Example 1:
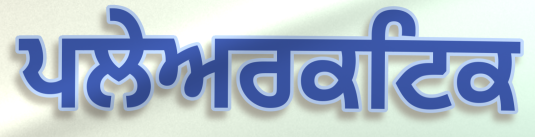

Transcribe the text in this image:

ਪਲੇਅਰਕਟਿਕ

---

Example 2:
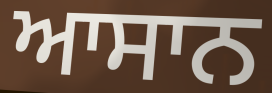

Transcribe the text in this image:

ਆਸਾਨ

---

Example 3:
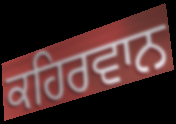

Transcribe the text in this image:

ਕਹਿਰਵਾਨ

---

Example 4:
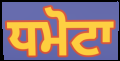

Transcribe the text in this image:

ਧਮੋਟਾ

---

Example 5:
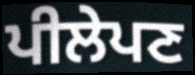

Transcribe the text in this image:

ਪੀਲੇਪਣ